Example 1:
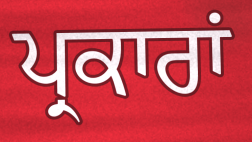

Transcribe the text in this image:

ਪ੍ਰਕਾਰਾਂ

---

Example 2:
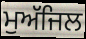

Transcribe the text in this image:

ਮੁਅੱਜਿਲ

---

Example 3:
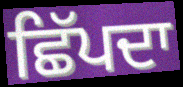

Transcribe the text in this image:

ਛਿੱਪਦਾ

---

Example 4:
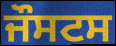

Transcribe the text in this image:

ਜੌਸਟਸ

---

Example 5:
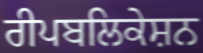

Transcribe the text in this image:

ਰੀਪਬਲਿਕੇਸ਼ਨ